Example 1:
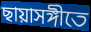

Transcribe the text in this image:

ছায়াসঙ্গীতে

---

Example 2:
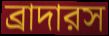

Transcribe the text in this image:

ব্রাদারস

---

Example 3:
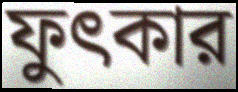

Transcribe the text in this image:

ফুৎকার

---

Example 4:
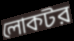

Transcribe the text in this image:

লোকটর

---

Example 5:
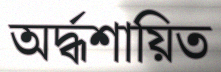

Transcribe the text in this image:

অর্দ্ধশায়িত